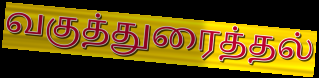
வகுத்துரைத்தல்